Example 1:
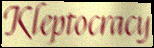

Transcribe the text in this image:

Kleptocracy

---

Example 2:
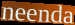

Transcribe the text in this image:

neenda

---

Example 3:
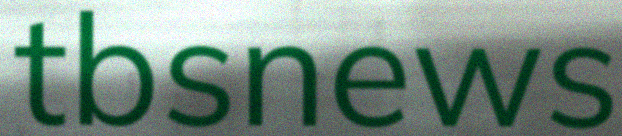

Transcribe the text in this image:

tbsnews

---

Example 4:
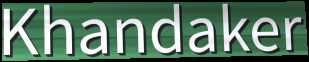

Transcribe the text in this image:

Khandaker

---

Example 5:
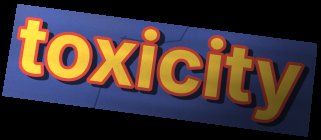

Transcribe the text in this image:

toxicity